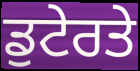
ਡੁਟੇਰਤੇ